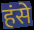
हंसे